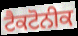
ਟੈਕਟੋਨੀਕ